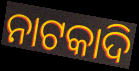
ନାଟକାଦି